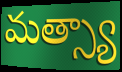
మత్స్యా